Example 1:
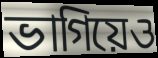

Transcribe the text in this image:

ভাগিয়েও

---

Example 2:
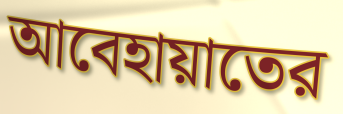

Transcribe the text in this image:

আবেহায়াতের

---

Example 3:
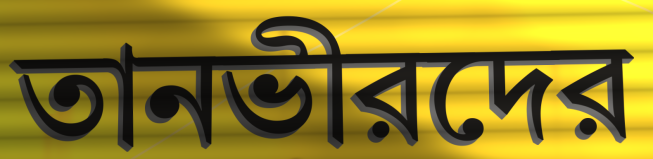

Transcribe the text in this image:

তানভীরদের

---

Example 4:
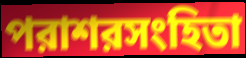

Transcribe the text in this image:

পরাশরসংহিতা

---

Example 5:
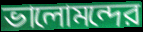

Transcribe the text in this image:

ভালোমন্দের